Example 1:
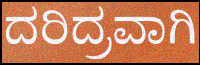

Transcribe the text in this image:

ದರಿದ್ರವಾಗಿ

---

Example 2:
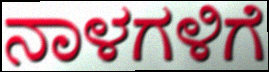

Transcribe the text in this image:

ನಾಳಗಳಿಗೆ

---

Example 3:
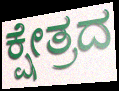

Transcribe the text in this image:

ಕ್ಷೇತ್ರದ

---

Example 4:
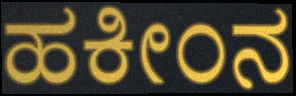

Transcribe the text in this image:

ಹಕೀಂನ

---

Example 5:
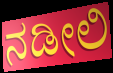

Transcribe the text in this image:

ನಡೀಲಿ